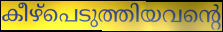
കീഴ്പെടുത്തിയവന്റെ